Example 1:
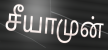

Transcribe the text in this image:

சீயாமுன்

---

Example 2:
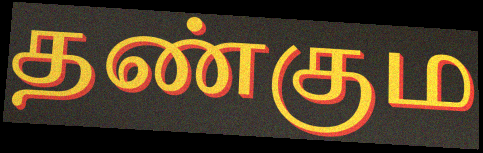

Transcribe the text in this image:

தண்கும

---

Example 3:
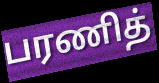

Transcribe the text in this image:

பரணித்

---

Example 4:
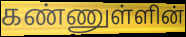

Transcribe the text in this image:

கண்ணுள்ளின்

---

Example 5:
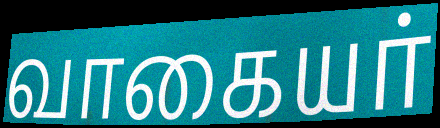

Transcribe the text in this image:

வாகையர்